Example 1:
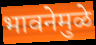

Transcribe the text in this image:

भावनेमुळे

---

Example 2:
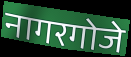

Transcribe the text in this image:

नागरगोजे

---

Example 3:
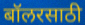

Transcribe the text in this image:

बॉलरसाठी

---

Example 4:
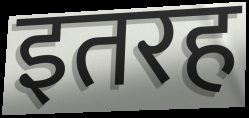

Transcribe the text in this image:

इतरह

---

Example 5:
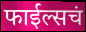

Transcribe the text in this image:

फाईल्सचं